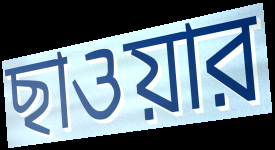
ছাওয়ার